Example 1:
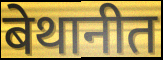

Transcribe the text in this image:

बेथानीत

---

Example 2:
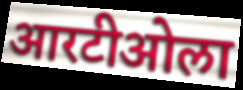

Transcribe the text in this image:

आरटीओला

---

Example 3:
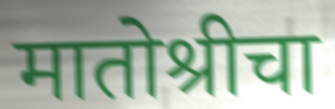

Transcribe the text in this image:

मातोश्रीचा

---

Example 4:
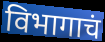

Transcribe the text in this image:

विभागाचं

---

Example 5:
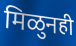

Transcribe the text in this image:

मिळुनही